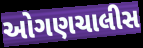
ઓગણચાલીસ